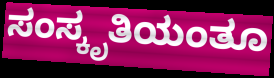
ಸಂಸ್ಕೃತಿಯಂತೂ